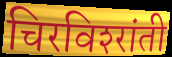
चिरविश्रांती